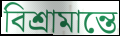
বিশ্রামান্তে